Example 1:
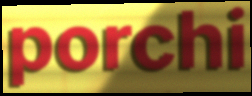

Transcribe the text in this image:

porchi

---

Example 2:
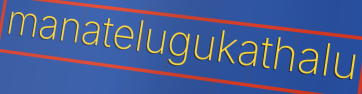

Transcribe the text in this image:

manatelugukathalu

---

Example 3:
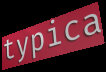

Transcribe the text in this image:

typica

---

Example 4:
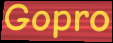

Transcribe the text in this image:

Gopro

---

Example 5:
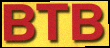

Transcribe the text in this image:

BTB